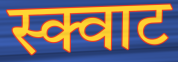
स्क्वाट